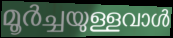
മൂർച്ചയുള്ളവാൾ